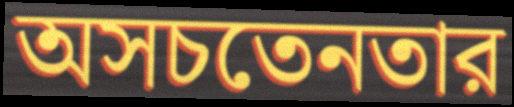
অসচতেনতার